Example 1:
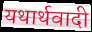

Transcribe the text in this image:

यथार्थवादी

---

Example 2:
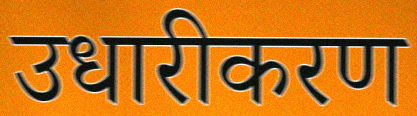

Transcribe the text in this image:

उधारीकरण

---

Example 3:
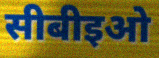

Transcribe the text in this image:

सीबीइओ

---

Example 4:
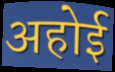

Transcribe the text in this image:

अहोई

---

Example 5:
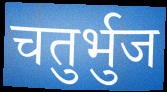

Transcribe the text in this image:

चतुर्भुज